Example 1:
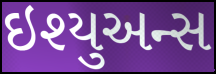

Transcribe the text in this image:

ઇશ્યુઅન્સ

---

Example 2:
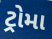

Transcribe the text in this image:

ટ્રોમા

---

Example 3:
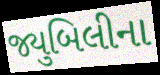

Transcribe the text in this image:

જ્યુબિલીના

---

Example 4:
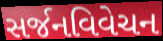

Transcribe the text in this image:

સર્જનવિવેચન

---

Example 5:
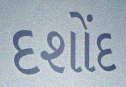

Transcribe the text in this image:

દશોંદ